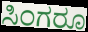
ಸಿಂಗರೂ